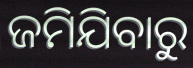
ଜମିଯିବାରୁ